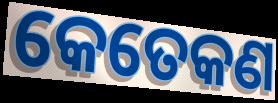
କେତେକଣ